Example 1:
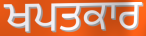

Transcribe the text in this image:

ਖਪਤਕਾਰ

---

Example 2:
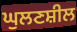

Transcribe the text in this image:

ਘੁਲਣਸ਼ੀਲ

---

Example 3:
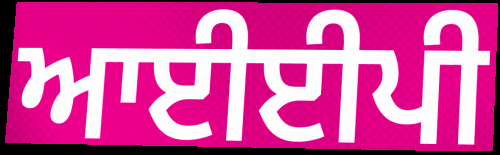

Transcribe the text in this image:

ਆਈਈਪੀ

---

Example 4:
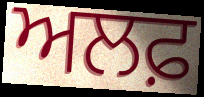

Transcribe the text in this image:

ਅਲਫ਼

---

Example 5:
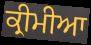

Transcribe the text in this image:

ਕ੍ਰੀਮੀਆ